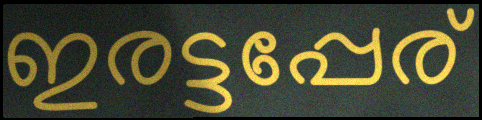
ഇരട്ടപ്പേര്